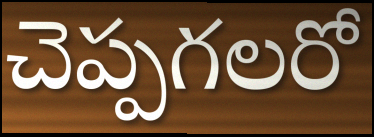
చెప్పగలరో